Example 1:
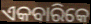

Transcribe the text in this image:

ଏକବାରିକେ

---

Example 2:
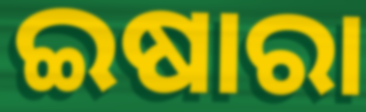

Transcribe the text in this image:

ଇଷାରା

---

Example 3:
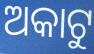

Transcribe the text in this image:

ଅକାଟୁ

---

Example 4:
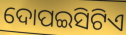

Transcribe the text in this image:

ଦୋପଇସିଟିଏ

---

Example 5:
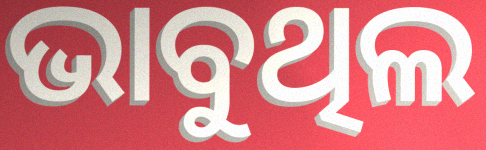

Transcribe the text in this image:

ଭାବୁଥିଲ